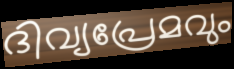
ദിവ്യപ്രേമവും